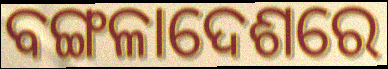
ବଙ୍ଗଳାଦେଶରେ